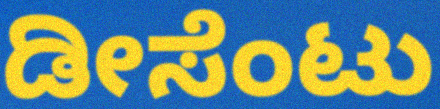
ಡೀಸೆಂಟು